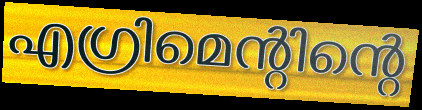
എഗ്രിമെന്റിന്റെ